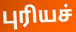
புரியச்